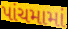
પાંચમામાં